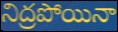
నిద్రపోయినా